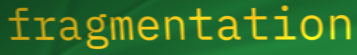
fragmentation